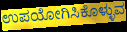
ಉಪಯೋಗಿಸಿಕೊಳ್ಳುವ